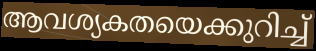
ആവശ്യകതയെക്കുറിച്ച്